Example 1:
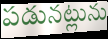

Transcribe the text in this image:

పడునట్లును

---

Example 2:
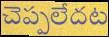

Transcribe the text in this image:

చెప్పలేదట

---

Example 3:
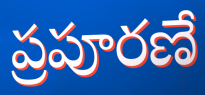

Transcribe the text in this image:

ప్రపూరణే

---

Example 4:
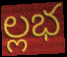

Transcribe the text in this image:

ల్లభ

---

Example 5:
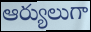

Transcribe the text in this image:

ఆర్యులుగా